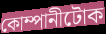
কোম্পানীটোক